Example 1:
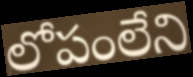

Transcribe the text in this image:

లోపంలేని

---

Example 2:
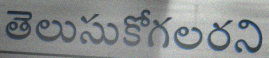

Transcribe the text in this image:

తెలుసుకోగలరని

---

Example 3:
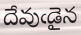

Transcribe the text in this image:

దేవుఁడైన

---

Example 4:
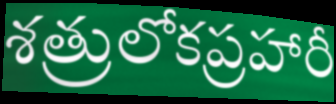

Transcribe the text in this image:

శత్రులోకప్రహారీ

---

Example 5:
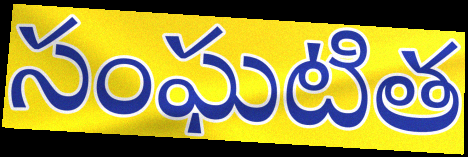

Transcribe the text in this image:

సంఘటిత